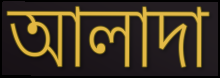
আলাদা